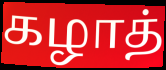
கழாத்